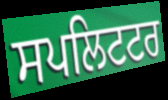
ਸਪਲਿਟਟਰ